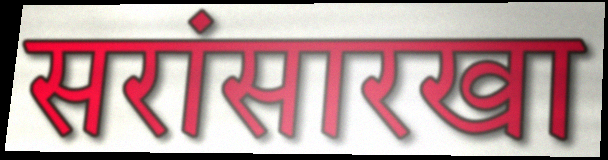
सरांसारखा